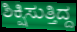
ಶಿಕ್ಷಿಸುತ್ತಿದ್ದ